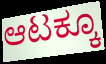
ಆಟಕ್ಕೂ